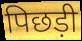
पिछड़ी